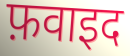
फ़वाइद